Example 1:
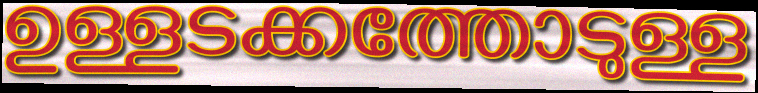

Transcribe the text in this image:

ഉള്ളടക്കത്തോടുള്ള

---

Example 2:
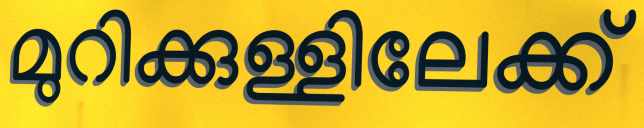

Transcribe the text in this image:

മുറിക്കുള്ളിലേക്ക്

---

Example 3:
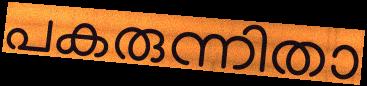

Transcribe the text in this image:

പകരുന്നിതാ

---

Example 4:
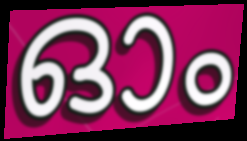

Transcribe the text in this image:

ഓം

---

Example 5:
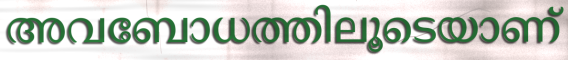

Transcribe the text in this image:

അവബോധത്തിലൂടെയാണ്